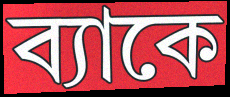
ব্যাকে